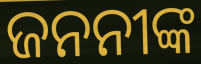
ଜନନୀଙ୍କ